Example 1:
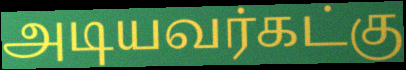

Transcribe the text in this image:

அடியவர்கட்கு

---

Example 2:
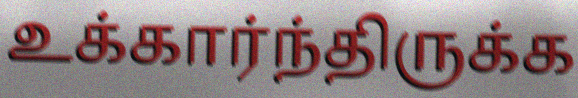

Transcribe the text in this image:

உக்கார்ந்திருக்க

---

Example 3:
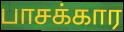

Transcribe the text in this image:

பாசக்கார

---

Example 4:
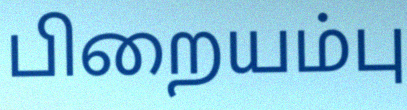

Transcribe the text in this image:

பிறையம்பு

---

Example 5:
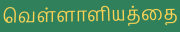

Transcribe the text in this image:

வெள்ளாளியத்தை